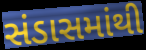
સંડાસમાંથી